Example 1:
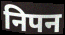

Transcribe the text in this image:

निपन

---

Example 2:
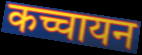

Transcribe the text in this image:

कच्चायन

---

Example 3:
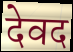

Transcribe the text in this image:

देवद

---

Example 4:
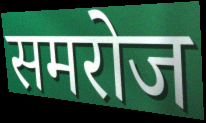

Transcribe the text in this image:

समरोज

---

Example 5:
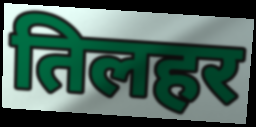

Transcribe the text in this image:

तिलहर